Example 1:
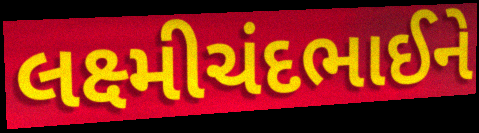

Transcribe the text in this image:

લક્ષ્મીચંદભાઈને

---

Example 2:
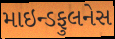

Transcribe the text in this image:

માઇન્ડફુલનેસ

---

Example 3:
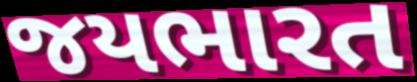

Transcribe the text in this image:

જયભારત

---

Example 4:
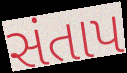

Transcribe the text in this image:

સંતાપ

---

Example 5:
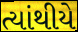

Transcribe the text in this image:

ત્યાંથીયે